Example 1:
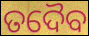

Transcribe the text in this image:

ତଦୈବ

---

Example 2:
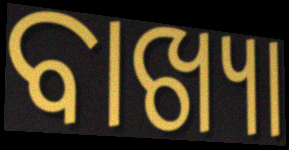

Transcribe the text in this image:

ବାଖ୍ୟା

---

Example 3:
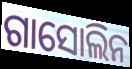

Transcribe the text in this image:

ଗାସୋଲିନ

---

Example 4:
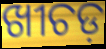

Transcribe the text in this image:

ଖୀଚଡ଼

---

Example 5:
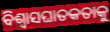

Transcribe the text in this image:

ବିଶ୍ୱାସଘାତକତାକୁ